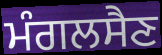
ਮੰਗਲਸੈਣ